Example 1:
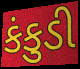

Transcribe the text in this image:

કંકુડી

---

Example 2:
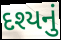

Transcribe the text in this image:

દશ્યનું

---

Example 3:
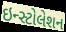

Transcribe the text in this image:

ઇન્સ્ટોલેશન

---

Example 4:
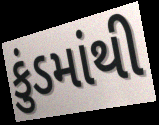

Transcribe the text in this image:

કુંડમાંથી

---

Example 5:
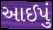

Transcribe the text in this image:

આઈપું